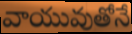
వాయువుతోనే